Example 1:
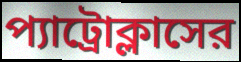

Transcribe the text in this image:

প্যাট্রোক্লাসের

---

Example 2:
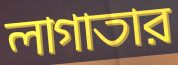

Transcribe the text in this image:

লাগাতার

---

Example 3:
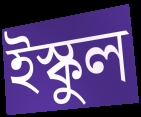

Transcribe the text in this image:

ইস্কুল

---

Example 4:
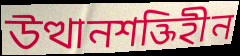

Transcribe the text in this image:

উত্থানশক্তিহীন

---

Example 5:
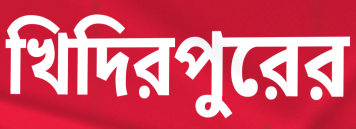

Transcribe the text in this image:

খিদিরপুরের